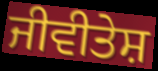
ਜੀਵੀਤੇਸ਼